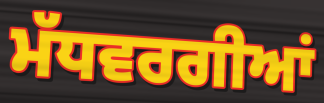
ਮੱਧਵਰਗੀਆਂ